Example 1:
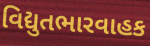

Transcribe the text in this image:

વિદ્યુતભારવાહક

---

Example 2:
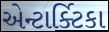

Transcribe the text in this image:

એન્ટાર્ક્ટિકા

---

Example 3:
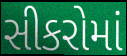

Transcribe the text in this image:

સીકરોમાં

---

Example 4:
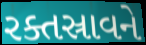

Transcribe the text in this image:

રક્તસ્રાવને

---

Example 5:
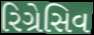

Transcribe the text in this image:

રિગ્રેસિવ